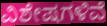
ವಿಶೇಷಗಳಿವೆ